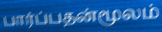
பார்ப்பதன்மூலம்